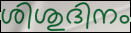
ശിശുദിനം